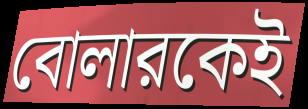
বোলারকেই